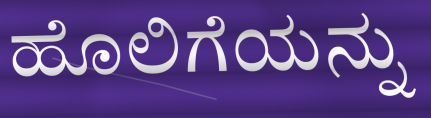
ಹೊಲಿಗೆಯನ್ನು